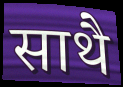
साथै